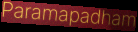
Paramapadham